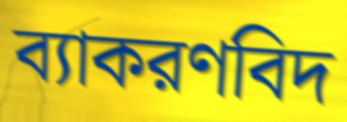
ব্যাকরণবিদ